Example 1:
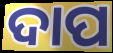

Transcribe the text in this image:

ଦାପ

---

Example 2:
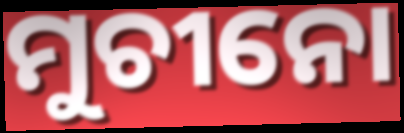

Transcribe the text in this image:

ମୁଚୀନୋ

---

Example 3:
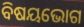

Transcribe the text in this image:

ବିଷୟଭୋଗ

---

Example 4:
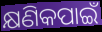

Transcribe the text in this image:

କ୍ଷଣିକପାଇଁ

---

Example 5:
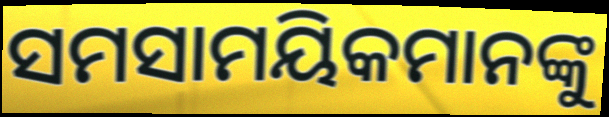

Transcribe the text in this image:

ସମସାମୟିକମାନଙ୍କୁ